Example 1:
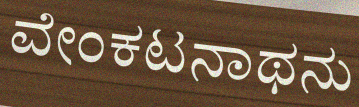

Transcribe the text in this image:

ವೇಂಕಟನಾಥನು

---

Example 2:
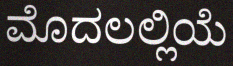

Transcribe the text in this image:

ಮೊದಲಲ್ಲಿಯೆ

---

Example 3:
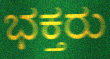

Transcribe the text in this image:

ಭಕ್ತರು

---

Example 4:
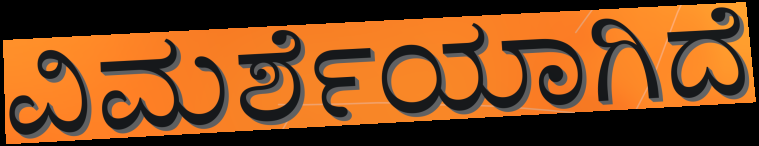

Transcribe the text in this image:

ವಿಮರ್ಶೆಯಾಗಿದೆ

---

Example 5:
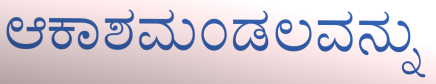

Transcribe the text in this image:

ಆಕಾಶಮಂಡಲವನ್ನು